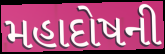
મહાદોષની